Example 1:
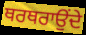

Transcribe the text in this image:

ਥਰਥਰਾਉਂਦੇ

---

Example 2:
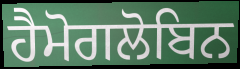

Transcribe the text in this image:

ਹੈਮੋਗਲੋਬਿਨ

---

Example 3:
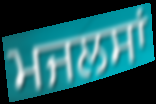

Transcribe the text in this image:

ਮਜਲਸਾਂ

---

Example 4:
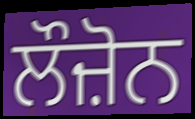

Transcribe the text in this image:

ਲੌਜ਼ੋਨ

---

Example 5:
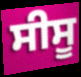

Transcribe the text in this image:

ਸੀਸੂ